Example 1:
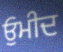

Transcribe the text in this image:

ਓੁਮੀਦ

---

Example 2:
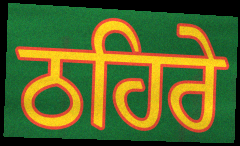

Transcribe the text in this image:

ਠਹਿਰੇ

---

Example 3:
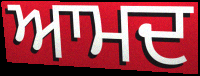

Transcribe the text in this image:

ਆਮਦ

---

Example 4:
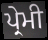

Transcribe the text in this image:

ਪ੍ਰੇਮੀ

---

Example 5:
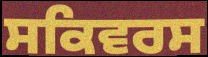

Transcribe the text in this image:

ਸਕਿਵਰਸ